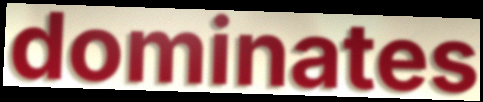
dominates